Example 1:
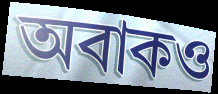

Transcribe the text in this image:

অবাকও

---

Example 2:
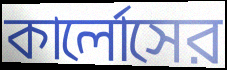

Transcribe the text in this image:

কার্লোসের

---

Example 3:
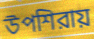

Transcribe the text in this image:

উপশিরায়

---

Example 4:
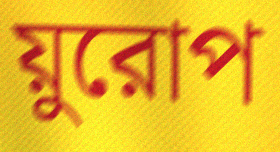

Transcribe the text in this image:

য়ুরোপ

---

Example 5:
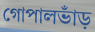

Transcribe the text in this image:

গোপালভাঁড়